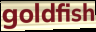
goldfish